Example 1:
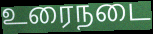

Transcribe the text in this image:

உரைநடை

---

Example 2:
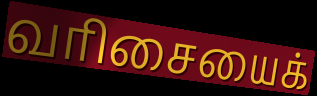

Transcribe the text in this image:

வரிசையைக்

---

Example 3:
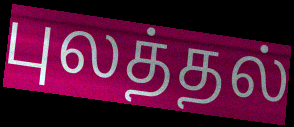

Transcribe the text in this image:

புலத்தல்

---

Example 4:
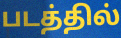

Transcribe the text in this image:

படத்தில்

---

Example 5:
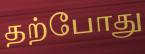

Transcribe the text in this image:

தற்போது